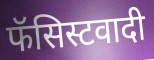
फॅसिस्टवादी